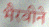
भैरवीने